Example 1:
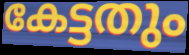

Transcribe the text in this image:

കേട്ടതും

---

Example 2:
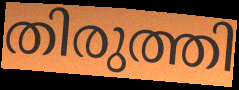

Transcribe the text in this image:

തിരുത്തി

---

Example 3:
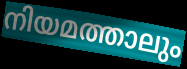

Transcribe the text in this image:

നിയമത്താലും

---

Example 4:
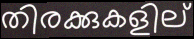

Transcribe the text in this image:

തിരക്കുകളില്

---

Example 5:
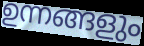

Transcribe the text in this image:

ഉന്നങ്ങളും